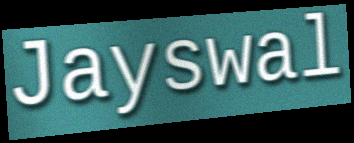
Jayswal